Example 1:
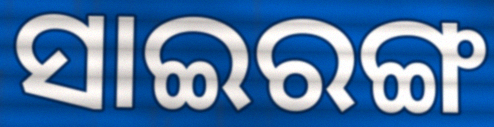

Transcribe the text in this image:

ସାଇରଙ୍ଗ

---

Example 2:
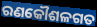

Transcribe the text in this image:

ରଣକୌଶଳଗତ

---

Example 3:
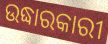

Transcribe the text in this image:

ଉଦ୍ଧାରକାରୀ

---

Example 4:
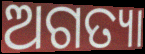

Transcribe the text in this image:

ଅଗତ୍ୟା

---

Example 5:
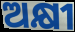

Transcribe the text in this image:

ଅକ୍ଷୀ